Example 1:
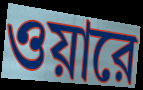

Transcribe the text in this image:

ওয়ারে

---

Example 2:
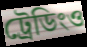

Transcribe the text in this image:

ট্রেডিংও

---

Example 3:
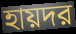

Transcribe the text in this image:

হায়দর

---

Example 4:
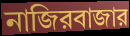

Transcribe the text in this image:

নাজিরবাজার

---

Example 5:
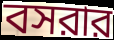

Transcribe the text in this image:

বসরার